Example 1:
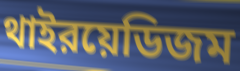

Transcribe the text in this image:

থাইরয়েডিজম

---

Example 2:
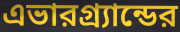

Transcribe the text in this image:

এভারগ্র্যান্ডের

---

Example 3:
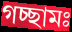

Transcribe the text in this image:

গচ্ছামঃ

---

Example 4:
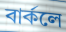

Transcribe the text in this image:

বার্কলে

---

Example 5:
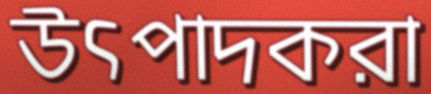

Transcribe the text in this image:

উৎপাদকরা